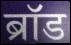
ब्रॉड